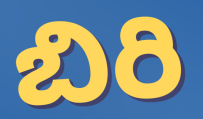
బిరి